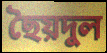
ছৈয়দুল